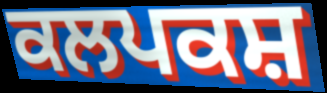
ਕਲਪਕਸ਼